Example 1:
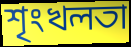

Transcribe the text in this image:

শৃংখলতা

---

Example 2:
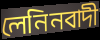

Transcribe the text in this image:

লেনিনবাদী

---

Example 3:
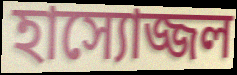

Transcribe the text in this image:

হাস্যোজ্জল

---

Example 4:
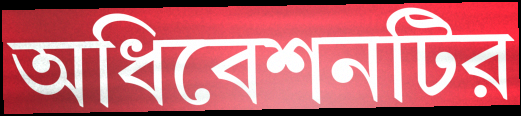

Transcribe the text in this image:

অধিবেশনটির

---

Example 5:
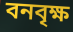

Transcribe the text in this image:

বনবৃক্ষ